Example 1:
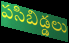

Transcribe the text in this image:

పసిబిడ్డలు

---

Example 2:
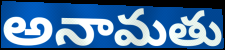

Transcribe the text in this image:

అనామతు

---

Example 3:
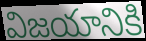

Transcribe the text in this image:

విజయానికి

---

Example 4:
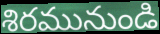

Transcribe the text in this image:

శిరమునుండి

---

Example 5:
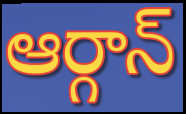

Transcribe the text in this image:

ఆర్గాన్